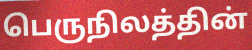
பெருநிலத்தின்